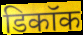
डिकॉक